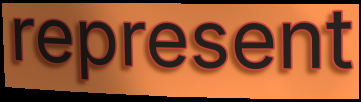
represent